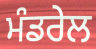
ਮੰਡਰੇਲ